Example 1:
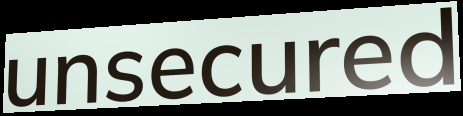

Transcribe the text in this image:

unsecured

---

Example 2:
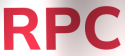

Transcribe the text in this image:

RPC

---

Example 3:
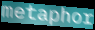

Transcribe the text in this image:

metaphor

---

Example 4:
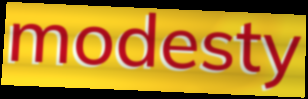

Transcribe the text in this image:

modesty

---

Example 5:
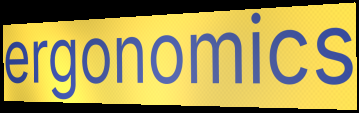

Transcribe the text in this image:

ergonomics